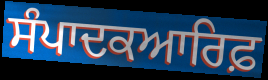
ਸੰਪਾਦਕਆਰਿਫ਼